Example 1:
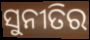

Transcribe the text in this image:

ସୁନୀତିର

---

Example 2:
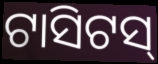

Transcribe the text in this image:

ଟାସିଟସ୍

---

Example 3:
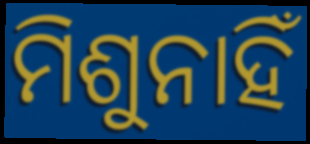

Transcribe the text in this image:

ମିଶୁନାହିଁ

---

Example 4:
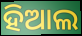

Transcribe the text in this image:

ହିଆଲ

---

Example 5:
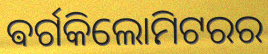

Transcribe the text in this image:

ଵର୍ଗକିଲୋମିଟରର